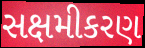
સક્ષમીકરણ